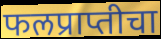
फलप्राप्तीचा